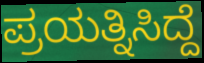
ಪ್ರಯತ್ನಿಸಿದ್ದೆ